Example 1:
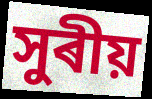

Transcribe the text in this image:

সুৰীয়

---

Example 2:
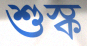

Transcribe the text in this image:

শুস্ক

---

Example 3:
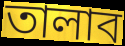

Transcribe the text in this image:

তালাব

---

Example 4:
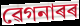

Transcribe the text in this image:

ৱেগনাৰৰ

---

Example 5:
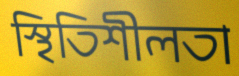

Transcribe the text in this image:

স্থিতিশীলতা